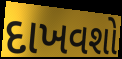
દાખવશો